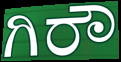
ಗಿರೌ